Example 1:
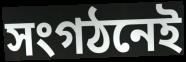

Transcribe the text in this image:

সংগঠনেই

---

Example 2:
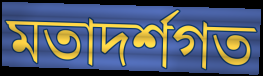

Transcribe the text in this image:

মতাদৰ্শগত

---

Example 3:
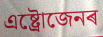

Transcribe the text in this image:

এষ্ট্ৰোজেনৰ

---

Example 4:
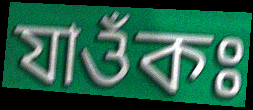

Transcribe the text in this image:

যাওঁকঃ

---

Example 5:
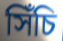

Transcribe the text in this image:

সিঁচি